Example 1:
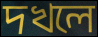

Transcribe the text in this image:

দখলে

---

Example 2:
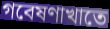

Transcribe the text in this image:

গবেষণাখাতে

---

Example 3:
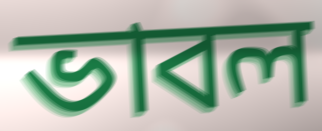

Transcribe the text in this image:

ভাবল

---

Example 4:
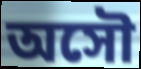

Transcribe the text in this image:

অসৌ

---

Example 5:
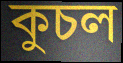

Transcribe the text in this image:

কুচল